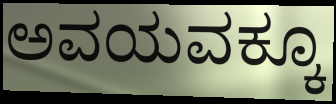
ಅವಯವಕ್ಕೂ